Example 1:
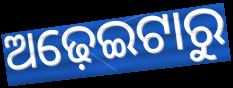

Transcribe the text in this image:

ଅଢ଼େଇଟାରୁ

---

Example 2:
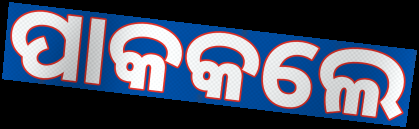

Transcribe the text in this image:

ପାକକଲେ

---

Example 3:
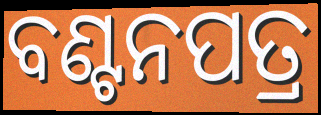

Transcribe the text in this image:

ବଣ୍ଟନପତ୍ର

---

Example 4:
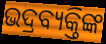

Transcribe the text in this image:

ଭଦ୍ରବ୍ୟକ୍ତିଙ୍କ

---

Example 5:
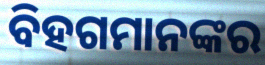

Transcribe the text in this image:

ବିହଗମାନଙ୍କର